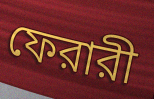
ফেরারী